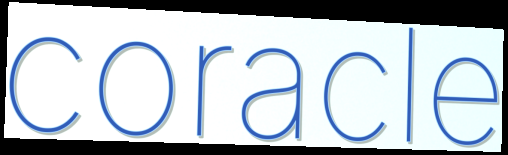
coracle